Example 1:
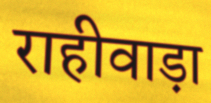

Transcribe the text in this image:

राहीवाड़ा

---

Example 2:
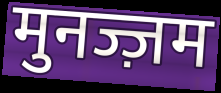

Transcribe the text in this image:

मुनज्ज़म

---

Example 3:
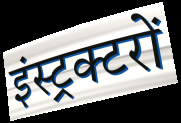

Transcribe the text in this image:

इंस्ट्रक्टरों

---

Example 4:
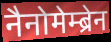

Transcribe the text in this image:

नैनोमेम्ब्रेन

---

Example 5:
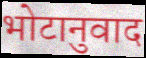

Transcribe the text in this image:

भोटानुवाद